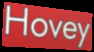
Hovey